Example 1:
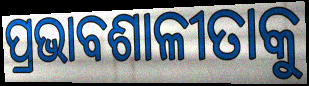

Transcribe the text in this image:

ପ୍ରଭାବଶାଳୀତାକୁ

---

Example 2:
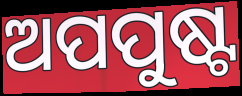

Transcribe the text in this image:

ଅପପୁଷ୍ଟ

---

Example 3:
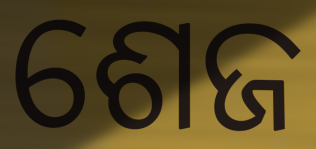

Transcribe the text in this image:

ଶେଜ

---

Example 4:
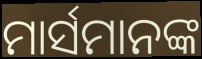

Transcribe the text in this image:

ମାର୍ସମାନଙ୍କ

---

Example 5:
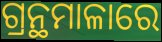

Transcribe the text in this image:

ଗ୍ରନ୍ଥମାଳାରେ